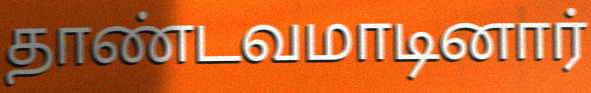
தாண்டவமாடினார்